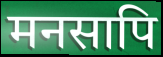
मनसापि